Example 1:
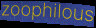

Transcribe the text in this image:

zoophilous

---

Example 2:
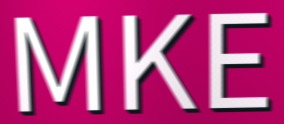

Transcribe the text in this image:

MKE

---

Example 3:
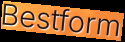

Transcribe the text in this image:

Bestform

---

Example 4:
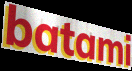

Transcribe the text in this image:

batami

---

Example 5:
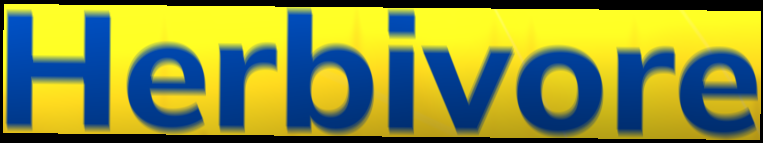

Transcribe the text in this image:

Herbivore